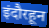
इंदौरहून